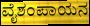
ವೈಶಂಪಾಯನ